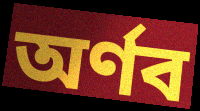
অর্ণব